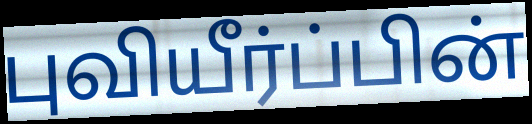
புவியீர்ப்பின்